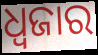
ଧ୍ୱଜାର